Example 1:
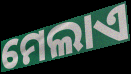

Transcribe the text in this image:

ମେଲାଏ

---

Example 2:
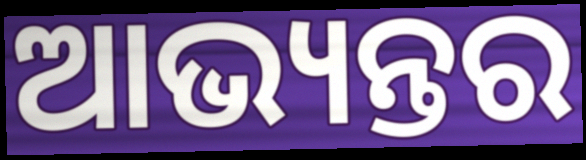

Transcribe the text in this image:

ଆଭ୍ୟନ୍ତର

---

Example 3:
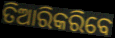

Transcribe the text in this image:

ତିଆରିକରିବେ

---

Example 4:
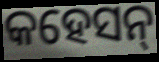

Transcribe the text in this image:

କହେସନ୍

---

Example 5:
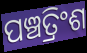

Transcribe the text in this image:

ପଞ୍ଚତ୍ରିଂଶ